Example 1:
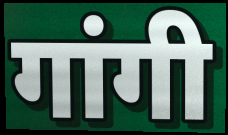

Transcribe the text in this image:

गांगी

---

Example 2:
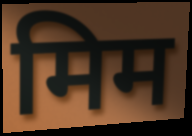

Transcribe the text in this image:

मिम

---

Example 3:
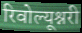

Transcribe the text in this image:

रिवोल्यूश्नरी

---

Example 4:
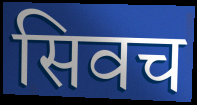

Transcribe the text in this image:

सिवच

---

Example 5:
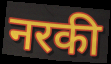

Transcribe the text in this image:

नरकी